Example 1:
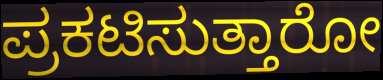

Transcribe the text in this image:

ಪ್ರಕಟಿಸುತ್ತಾರೋ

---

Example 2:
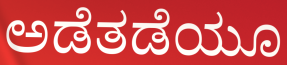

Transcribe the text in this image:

ಅಡೆತಡೆಯೂ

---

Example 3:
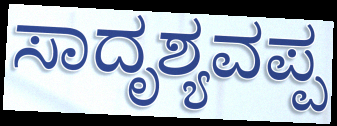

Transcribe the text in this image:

ಸಾದೃಶ್ಯವಪ್ಪ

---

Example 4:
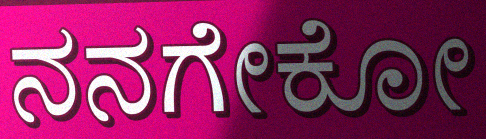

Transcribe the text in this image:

ನನಗೇಕೋ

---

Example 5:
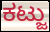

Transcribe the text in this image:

ಕಟ್ಜು